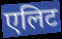
एलिट